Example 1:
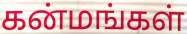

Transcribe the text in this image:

கன்மங்கள்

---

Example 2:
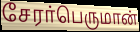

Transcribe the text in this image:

சேரர்பெருமான்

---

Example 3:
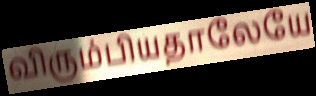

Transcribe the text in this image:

விரும்பியதாலேயே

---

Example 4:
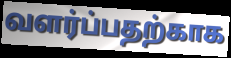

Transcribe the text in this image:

வளர்ப்பதற்காக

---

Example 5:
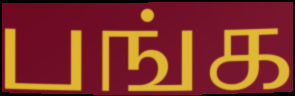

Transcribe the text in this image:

பங்க